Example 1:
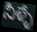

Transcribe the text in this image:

నీళ్ళే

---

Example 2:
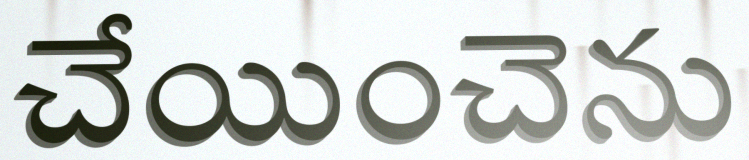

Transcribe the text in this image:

చేయించెను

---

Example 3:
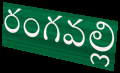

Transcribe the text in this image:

రంగవల్లి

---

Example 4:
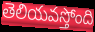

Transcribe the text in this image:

తెలియవస్తోంది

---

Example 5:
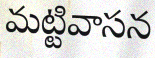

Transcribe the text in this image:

మట్టివాసన